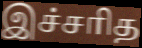
இச்சரித